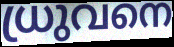
ധ്രുവനെ